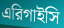
এরিগাইসি